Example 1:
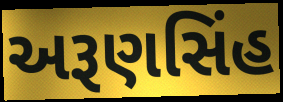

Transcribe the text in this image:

અરૂણસિંહ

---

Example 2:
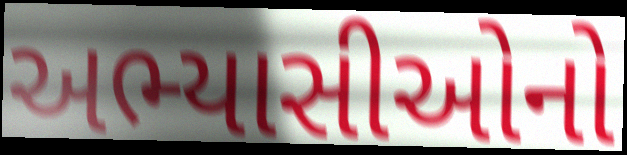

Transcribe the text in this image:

અભ્યાસીઓનો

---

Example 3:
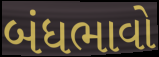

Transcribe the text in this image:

બંધભાવો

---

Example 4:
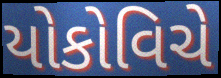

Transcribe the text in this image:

યોકોવિચે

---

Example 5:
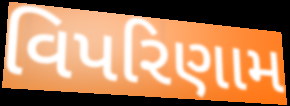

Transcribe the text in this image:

વિપરિણામ